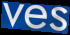
ves